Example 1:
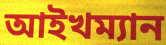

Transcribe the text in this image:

আইখম্যান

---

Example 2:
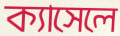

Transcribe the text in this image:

ক্যাসেলে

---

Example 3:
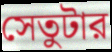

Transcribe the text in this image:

সেতুটার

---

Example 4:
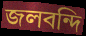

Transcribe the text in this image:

জলবন্দি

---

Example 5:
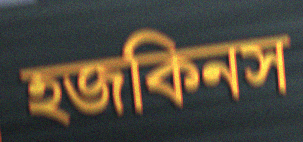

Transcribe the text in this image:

হজকিনস